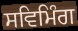
ਸਵਿਮਿੰਗ